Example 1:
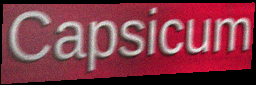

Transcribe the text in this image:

Capsicum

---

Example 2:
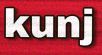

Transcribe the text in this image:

kunj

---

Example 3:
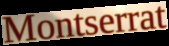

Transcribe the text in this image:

Montserrat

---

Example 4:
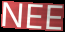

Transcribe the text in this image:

NEE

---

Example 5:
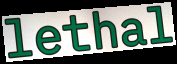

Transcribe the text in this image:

lethal